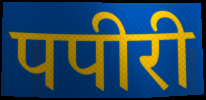
पपीरी